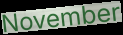
November